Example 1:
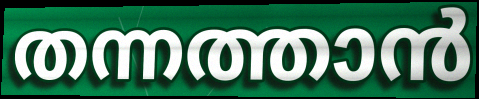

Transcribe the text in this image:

തന്നത്താൻ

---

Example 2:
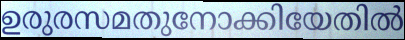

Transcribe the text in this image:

ഉരുരസമതുനോക്കിയേതിൽ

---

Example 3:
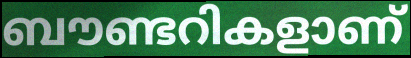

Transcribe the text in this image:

ബൗണ്ടറികളാണ്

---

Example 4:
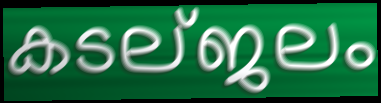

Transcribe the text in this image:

കടല്ജലം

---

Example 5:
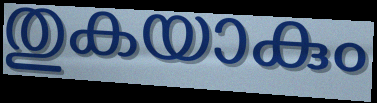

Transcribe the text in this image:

തുകയാകും